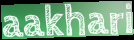
aakhari